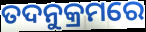
ତଦନୁକ୍ରମରେ